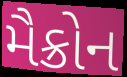
મૈક્રોન